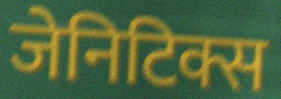
जेनिटिक्स